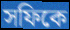
সফিকে